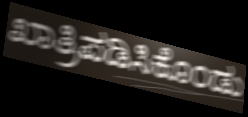
ಖಾತ್ರಿಪಡಿಸಿಕೊಂಡು